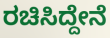
ರಚಿಸಿದ್ದೇನೆ